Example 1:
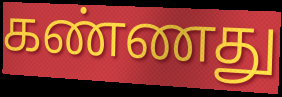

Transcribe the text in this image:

கண்ணது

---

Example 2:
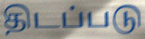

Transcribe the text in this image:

திடப்படு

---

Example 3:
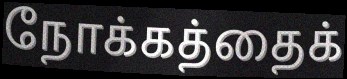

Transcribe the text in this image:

நோக்கத்தைக்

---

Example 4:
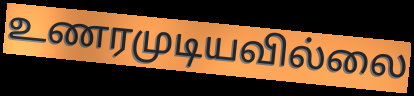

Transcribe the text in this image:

உணரமுடியவில்லை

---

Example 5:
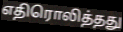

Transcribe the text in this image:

எதிரொலித்தது